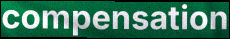
compensation